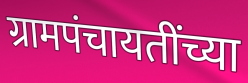
ग्रामपंचायतींच्या